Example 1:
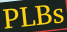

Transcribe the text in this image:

PLBs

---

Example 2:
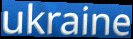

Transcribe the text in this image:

ukraine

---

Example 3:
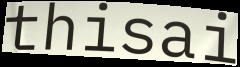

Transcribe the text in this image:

thisai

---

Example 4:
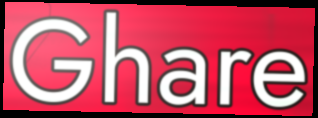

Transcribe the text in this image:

Ghare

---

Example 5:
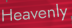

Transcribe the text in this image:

Heavenly